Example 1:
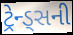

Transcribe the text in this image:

ટ્રેન્ડ્સની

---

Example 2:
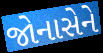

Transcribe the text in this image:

જોનાસેને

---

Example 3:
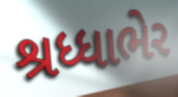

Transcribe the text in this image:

શ્રધ્ધાભેર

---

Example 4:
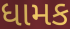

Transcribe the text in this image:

ધામક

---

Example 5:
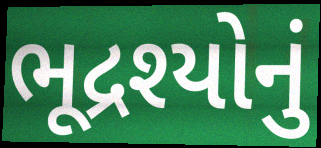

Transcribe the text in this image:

ભૂદ્રશ્યોનું